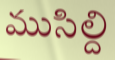
ముసిల్ది